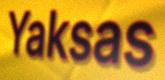
Yaksas